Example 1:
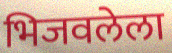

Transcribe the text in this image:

भिजवलेला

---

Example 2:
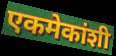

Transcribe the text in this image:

एकमेकांशी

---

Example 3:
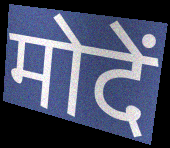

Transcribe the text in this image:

मोदें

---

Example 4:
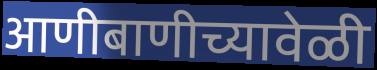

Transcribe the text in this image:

आणीबाणीच्यावेळी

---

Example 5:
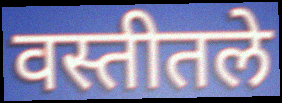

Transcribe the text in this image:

वस्तीतले